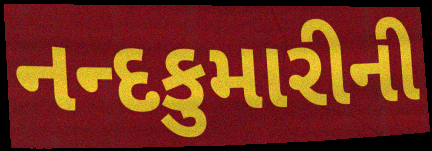
નન્દકુમારીની